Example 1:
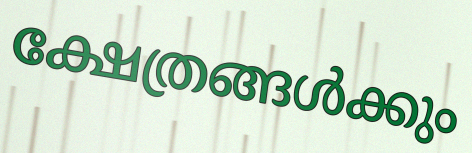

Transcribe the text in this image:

ക്ഷേത്രങ്ങൾക്കും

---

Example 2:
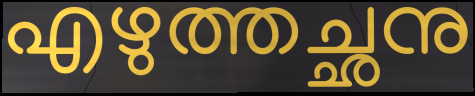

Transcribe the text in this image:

എഴുത്തച്ഛനു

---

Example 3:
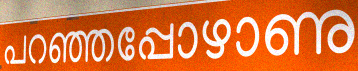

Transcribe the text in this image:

പറഞ്ഞപ്പോഴാണു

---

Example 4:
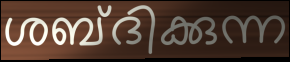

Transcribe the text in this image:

ശബ്ദിക്കുന്ന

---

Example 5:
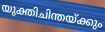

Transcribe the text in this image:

യുക്തിചിന്തയ്ക്കും